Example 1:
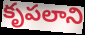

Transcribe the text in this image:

కృపలాని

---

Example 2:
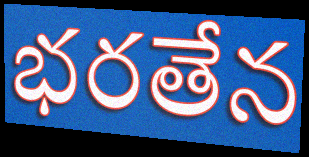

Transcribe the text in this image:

భరతేన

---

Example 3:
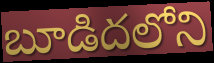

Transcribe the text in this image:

బూడిదలోని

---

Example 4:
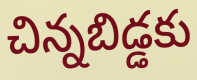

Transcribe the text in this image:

చిన్నబిడ్డకు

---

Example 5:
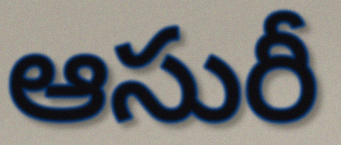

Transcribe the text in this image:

ఆసురీ